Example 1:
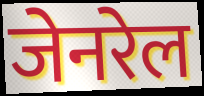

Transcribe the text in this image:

जेनरेल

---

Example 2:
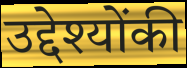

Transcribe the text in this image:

उद्देश्योंकी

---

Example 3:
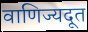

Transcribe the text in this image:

वाणिज्यदूत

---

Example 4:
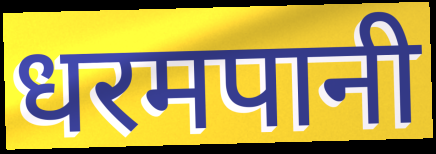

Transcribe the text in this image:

धरमपानी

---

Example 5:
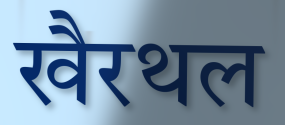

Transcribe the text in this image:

खैरथल